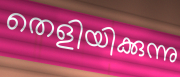
തെളിയിക്കുന്നു